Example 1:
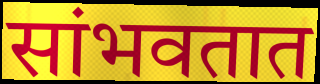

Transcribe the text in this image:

सांभवतात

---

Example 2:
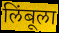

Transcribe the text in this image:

लिंबूला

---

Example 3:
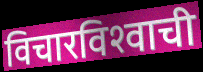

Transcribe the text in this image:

विचारविश्वाची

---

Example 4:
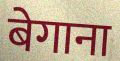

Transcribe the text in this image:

बेगाना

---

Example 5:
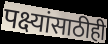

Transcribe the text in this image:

पक्ष्यांसाठीही